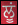
ਲੂਂ